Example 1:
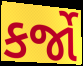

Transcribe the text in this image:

કર્જો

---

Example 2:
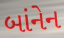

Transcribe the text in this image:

બાંનેન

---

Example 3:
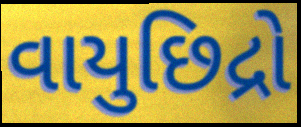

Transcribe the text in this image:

વાયુછિદ્રો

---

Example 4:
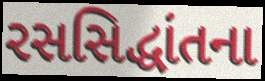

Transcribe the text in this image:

રસસિદ્ધાંતના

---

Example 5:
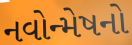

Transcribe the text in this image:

નવોન્મેષનો